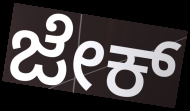
ಜೇಕ್